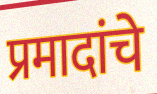
प्रमादांचे